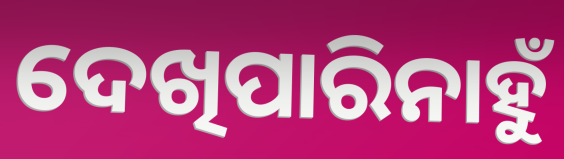
ଦେଖିପାରିନାହୁଁ